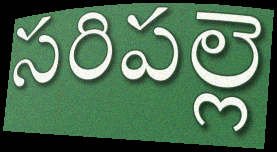
సరిపల్లె